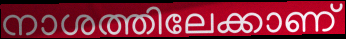
നാശത്തിലേക്കാണ്